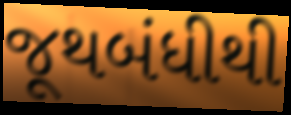
જૂથબંધીથી